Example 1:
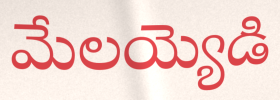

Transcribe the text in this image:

మేలయ్యెడి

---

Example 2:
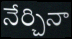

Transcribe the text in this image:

నేర్చినా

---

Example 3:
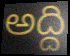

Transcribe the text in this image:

అద్ది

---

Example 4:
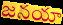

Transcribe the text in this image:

జనయా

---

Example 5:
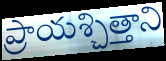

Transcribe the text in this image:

ప్రాయశ్చిత్తాని